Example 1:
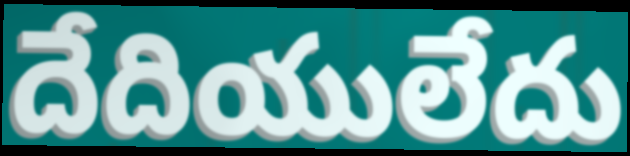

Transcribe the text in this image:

దేదియులేదు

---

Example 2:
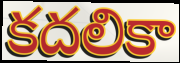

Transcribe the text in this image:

కదలికా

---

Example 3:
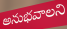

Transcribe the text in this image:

అనుభవాలని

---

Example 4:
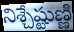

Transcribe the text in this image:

నిశ్చేష్టుణ్ణి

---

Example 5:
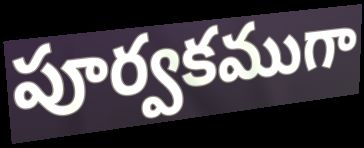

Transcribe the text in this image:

పూర్వకముగా